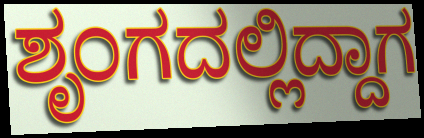
ಶೃಂಗದಲ್ಲಿದ್ದಾಗ